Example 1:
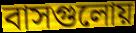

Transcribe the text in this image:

বাসগুলোয়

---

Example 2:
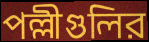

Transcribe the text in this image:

পল্লীগুলির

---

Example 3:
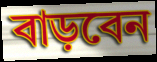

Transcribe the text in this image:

বাড়বেন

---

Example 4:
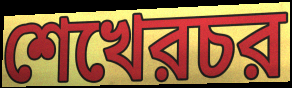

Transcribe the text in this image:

শেখেরচর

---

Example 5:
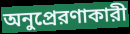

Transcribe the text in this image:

অনুপ্রেরণাকারী